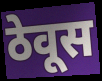
ठेवूस